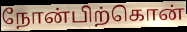
நோன்பிற்கொன்